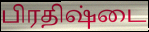
பிரதிஷ்டை